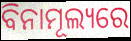
ବିନାମୂଲ୍ୟରେ